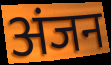
अंजन